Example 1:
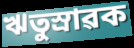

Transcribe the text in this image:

ঋতুস্ৰাৱক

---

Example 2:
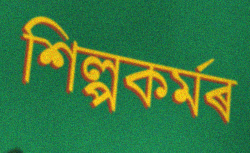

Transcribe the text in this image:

শিল্পকৰ্মৰ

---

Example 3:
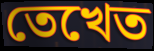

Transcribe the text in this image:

তেখেত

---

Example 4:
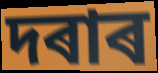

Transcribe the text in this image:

দৰাৰ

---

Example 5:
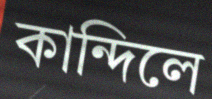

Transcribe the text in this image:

কান্দিলে